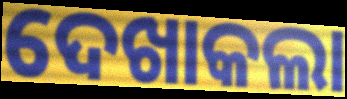
ଦେଖାକଲା